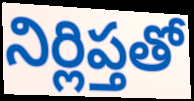
నిర్లిప్తతో